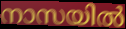
നാസയിൽ